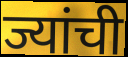
ज्यांची